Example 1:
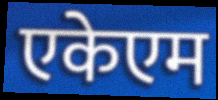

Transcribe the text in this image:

एकेएम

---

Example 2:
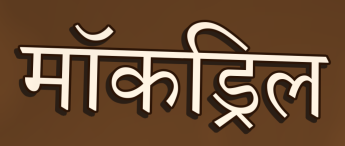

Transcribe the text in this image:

मॉकड्रिल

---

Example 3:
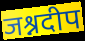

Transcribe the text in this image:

जश्नदीप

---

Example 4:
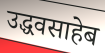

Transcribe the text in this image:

उद्धवसाहेब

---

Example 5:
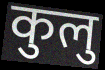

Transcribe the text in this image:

कुलु